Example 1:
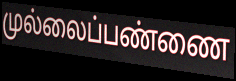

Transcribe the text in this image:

முல்லைப்பண்ணை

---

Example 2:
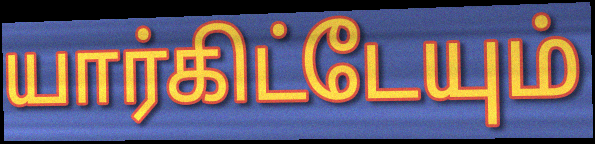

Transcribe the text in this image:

யார்கிட்டேயும்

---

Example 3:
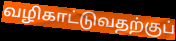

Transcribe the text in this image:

வழிகாட்டுவதற்குப்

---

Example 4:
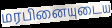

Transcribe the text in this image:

மரபினையுடைய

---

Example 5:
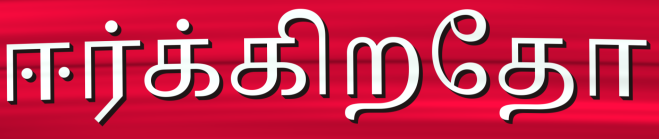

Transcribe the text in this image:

ஈர்க்கிறதோ